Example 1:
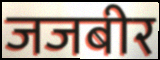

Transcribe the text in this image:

जजबीर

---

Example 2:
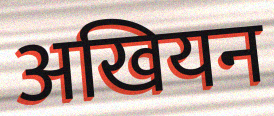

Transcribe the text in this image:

अखियन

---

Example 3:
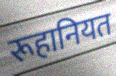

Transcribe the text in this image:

रूहानियत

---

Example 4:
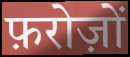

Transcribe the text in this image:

फ़रोज़ों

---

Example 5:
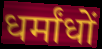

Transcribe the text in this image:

धर्मांधों